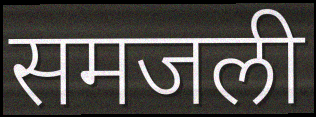
समजली